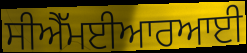
ਸੀਐੱਮਈਆਰਆਈ